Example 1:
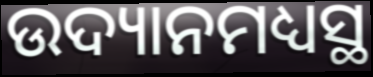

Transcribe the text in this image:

ଉଦ୍ୟାନମଧ୍ୟସ୍ଥ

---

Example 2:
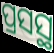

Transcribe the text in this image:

ପ୍ରସସ୍ଥ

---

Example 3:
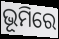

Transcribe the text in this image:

ଭୂମିରେ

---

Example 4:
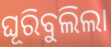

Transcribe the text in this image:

ଘୂରିବୁଲିଲା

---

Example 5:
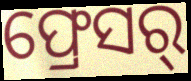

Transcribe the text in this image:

ଫ୍ରେସର୍